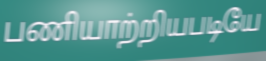
பணியாற்றியபடியே